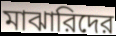
মাঝারিদের